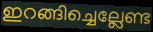
ഇറങ്ങിച്ചെല്ലേണ്ട